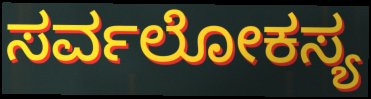
ಸರ್ವಲೋಕಸ್ಯ